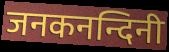
जनकनन्दिनी